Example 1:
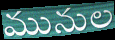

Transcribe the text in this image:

మునుల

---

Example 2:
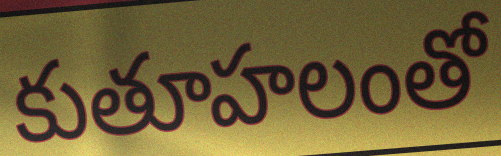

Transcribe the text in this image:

కుతూహలంతో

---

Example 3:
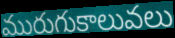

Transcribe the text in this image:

మురుగుకాలువలు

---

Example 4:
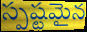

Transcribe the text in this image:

స్పష్టమైన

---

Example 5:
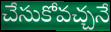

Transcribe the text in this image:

చేసుకోవచ్చనే